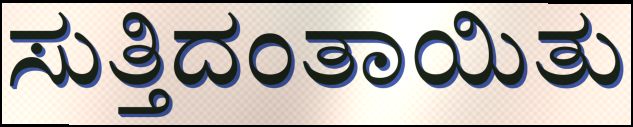
ಸುತ್ತಿದಂತಾಯಿತು